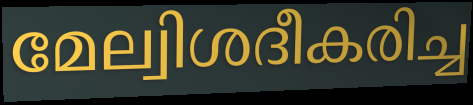
മേല്വിശദീകരിച്ച